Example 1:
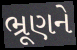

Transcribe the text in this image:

ભ્રૂણને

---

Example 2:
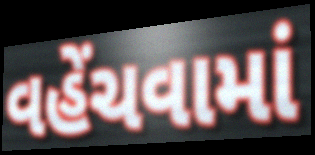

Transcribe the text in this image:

વહેંચવામાં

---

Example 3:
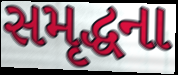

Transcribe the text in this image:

સમૃદ્ધના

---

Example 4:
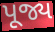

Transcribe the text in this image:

પૂજ્ય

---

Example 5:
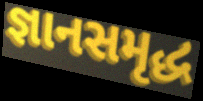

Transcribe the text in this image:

જ્ઞાનસમૃદ્ધ